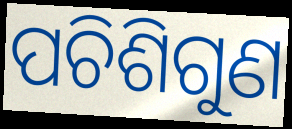
ପଚିଶିଗୁଣ